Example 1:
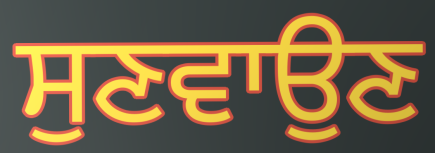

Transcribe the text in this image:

ਸੁਣਵਾਉਣ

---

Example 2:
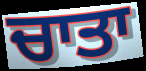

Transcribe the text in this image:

ਚਾਤਾ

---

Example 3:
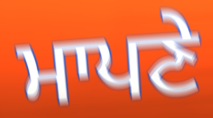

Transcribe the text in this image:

ਮਾਪਣੇ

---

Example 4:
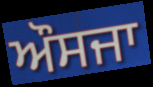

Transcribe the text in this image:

ਔਸਜਾ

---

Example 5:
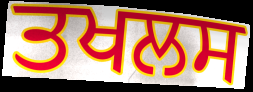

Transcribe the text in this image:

ਤਖਲਸ